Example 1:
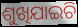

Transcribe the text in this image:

ଶୁଖିଯାଇଚି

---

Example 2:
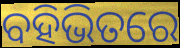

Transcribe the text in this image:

ବହିଭିତରେ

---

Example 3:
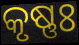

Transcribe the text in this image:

କୃଷ୍ଣଃ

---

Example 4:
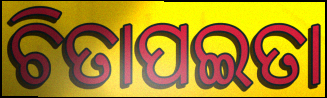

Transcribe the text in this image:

ଚିତାପଇତା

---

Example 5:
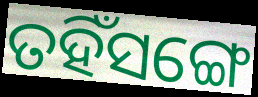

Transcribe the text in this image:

ତହିଁସଙ୍ଗେ